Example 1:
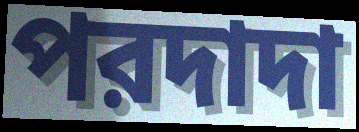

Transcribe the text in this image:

পরদাদা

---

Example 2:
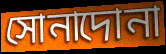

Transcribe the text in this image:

সোনাদোনা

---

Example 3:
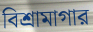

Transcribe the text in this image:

বিশ্রামাগার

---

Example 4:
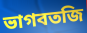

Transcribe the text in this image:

ভাগবতজি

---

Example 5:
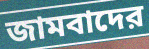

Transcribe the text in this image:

জামবাদের